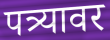
पत्र्यावर